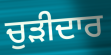
ਚੁੜੀਦਾਰ